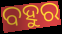
ବହୁର